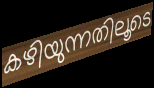
കഴിയുന്നതിലൂടെ